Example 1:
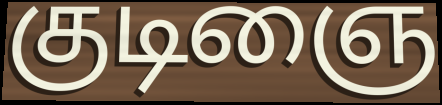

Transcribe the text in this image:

குடிஞை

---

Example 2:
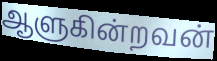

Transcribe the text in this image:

ஆளுகின்றவன்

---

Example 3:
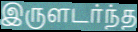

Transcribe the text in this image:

இருளடர்ந்த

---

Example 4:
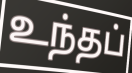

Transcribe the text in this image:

உந்தப்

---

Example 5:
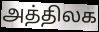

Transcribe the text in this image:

அத்திலக